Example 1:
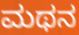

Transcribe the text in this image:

ಮಥನ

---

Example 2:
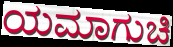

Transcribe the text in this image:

ಯಮಾಗುಚಿ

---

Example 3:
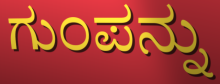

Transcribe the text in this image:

ಗುಂಪನ್ನು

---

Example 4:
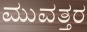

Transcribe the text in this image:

ಮುವತ್ತರ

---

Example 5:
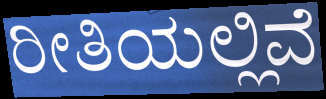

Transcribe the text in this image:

ರೀತಿಯಲ್ಲಿವೆ